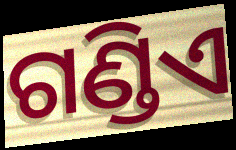
ଗଣ୍ଡିଏ